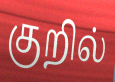
குறில்